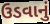
ઉડવાનું